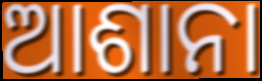
ଆଶାନା